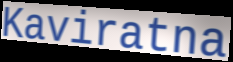
Kaviratna